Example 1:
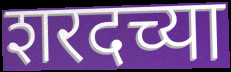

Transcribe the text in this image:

शरदच्या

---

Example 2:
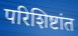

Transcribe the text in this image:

परिशिष्टांत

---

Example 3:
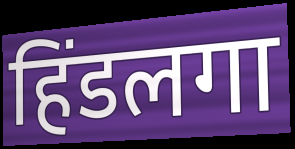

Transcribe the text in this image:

हिंडलगा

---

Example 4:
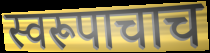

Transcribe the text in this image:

स्वरूपाचाच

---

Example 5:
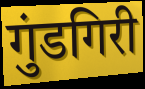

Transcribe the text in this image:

गुंडगिरी